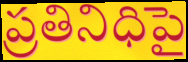
ప్రతినిధిపై